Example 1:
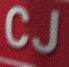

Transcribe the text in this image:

CJ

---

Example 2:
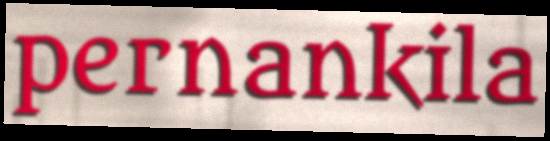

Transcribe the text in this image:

pernankila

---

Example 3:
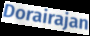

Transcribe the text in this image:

Dorairajan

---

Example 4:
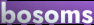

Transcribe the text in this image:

bosoms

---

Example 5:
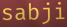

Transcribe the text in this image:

sabji